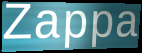
Zappa